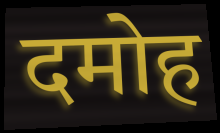
दमोह